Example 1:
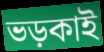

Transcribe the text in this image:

ভড়কাই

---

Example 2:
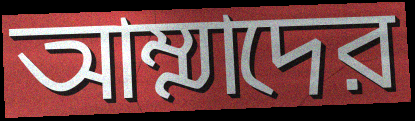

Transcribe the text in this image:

আম্মাদের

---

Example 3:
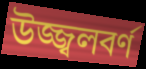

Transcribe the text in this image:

উজ্জ্বলবর্ণ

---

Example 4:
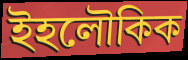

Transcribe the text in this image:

ইহলৌকিক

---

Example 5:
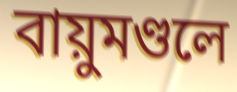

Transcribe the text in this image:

বায়ুমণ্ডলে